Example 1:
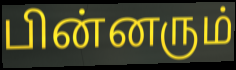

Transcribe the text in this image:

பின்னரும்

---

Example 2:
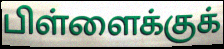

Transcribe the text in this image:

பிள்ளைக்குக்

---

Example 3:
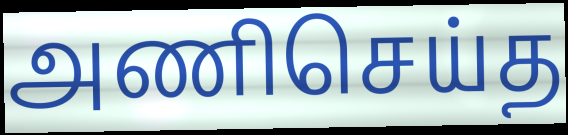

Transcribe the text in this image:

அணிசெய்த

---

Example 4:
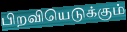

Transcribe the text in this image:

பிறவியெடுக்கும்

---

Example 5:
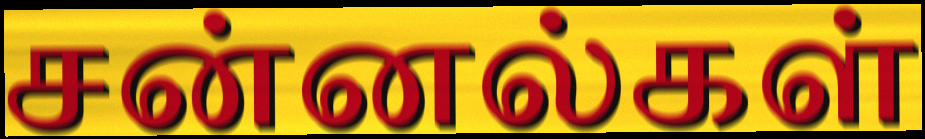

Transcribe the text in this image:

சன்னல்கள்